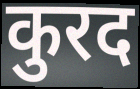
कुरद